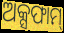
ଅକ୍ସଫାମ୍